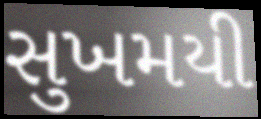
સુખમયી